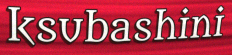
ksubashini